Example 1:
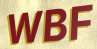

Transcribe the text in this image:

WBF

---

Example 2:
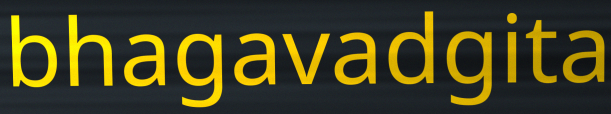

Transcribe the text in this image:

bhagavadgita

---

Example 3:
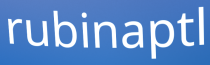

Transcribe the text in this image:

rubinaptl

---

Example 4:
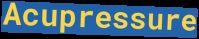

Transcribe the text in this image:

Acupressure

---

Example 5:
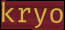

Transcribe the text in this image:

kryo